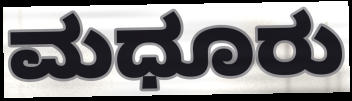
ಮಧೂರು